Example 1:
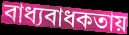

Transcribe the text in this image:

বাধ্যবাধকতায়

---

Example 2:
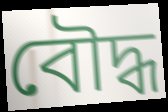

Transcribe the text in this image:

বৌদ্ধ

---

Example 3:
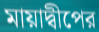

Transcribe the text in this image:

মায়াদ্বীপের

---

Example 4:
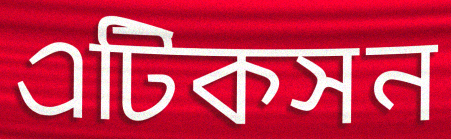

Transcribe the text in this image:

এটিকসন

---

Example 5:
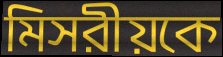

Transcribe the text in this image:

মিসরীয়কে